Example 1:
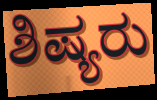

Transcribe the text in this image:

ಶಿಷ್ಯರು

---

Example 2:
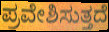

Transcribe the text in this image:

ಪ್ರವೇಶಿಸುತ್ತದೆ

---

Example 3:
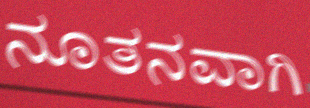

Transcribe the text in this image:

ನೂತನವಾಗಿ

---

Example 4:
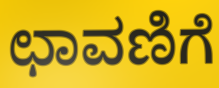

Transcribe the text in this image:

ಛಾವಣಿಗೆ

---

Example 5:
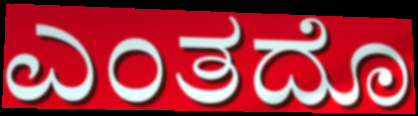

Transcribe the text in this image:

ಎಂತದೊ